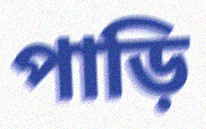
পাড়ি